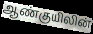
ஆண்குயிலின்